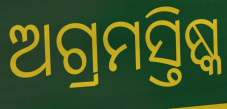
ଅଗ୍ରମସ୍ତିଷ୍କ